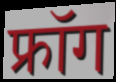
फ्रॉग